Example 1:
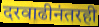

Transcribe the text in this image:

दरवाढीनंतरही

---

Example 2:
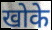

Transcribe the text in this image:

खोके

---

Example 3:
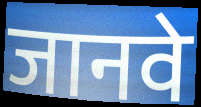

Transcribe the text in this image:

जानवे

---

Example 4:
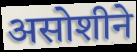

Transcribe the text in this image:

असोशीने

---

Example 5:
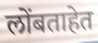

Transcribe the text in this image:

लोंबताहेत